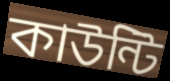
কাউন্টি